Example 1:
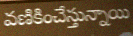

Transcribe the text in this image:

వణికించేస్తున్నాయి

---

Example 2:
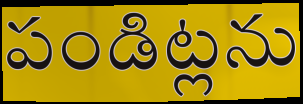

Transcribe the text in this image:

పండిట్లను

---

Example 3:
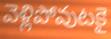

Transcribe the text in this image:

వెళ్లిపోవుటకై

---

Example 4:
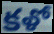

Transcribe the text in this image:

కళో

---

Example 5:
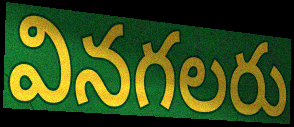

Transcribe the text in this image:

వినగలరు